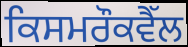
ਕਿਸਮਰੌਕਵੈੱਲ